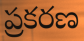
ప్రకరణ